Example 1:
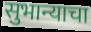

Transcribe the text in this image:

सुभान्याचा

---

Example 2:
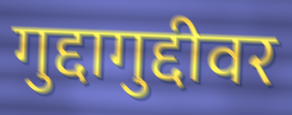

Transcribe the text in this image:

गुद्दागुद्दीवर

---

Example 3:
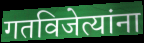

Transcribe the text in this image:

गतविजेत्यांना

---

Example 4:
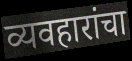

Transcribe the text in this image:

व्यवहारांचा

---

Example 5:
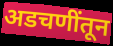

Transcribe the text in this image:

अडचणींतून